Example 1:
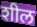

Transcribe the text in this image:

शील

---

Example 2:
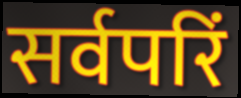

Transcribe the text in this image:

सर्वपरिं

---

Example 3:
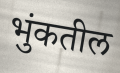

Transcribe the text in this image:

भुंकतील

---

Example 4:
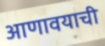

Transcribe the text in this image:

आणावयाची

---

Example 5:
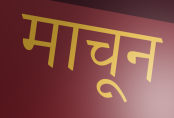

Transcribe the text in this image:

माचून